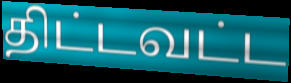
திட்டவட்ட